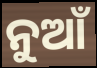
ନୁଆଁ